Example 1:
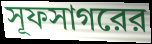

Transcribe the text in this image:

সূফসাগরের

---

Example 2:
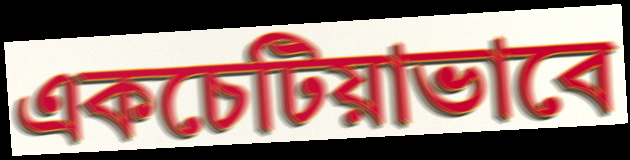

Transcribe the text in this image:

একচেটিয়াভাবে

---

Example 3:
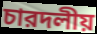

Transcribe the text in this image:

চারদলীয়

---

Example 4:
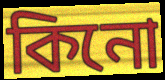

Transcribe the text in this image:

কিনো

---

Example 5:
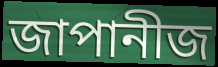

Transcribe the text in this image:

জাপানীজ